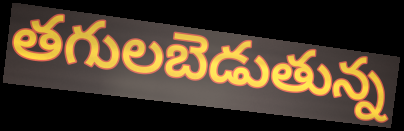
తగులబెడుతున్న